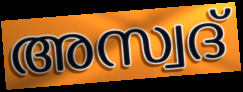
അസ്വദ്